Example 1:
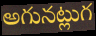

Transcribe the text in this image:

అగునట్లుగ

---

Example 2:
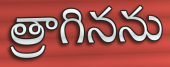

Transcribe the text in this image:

త్రాగినను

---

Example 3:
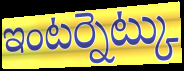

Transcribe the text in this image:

ఇంటర్నెట్కు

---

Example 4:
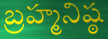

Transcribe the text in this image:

బ్రహ్మనిష్ఠ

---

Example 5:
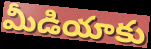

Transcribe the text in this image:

మీడియాకు